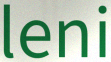
leni